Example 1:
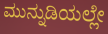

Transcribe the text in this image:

ಮುನ್ನುಡಿಯಲ್ಲೇ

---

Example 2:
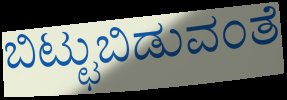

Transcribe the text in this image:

ಬಿಟ್ಟುಬಿಡುವಂತೆ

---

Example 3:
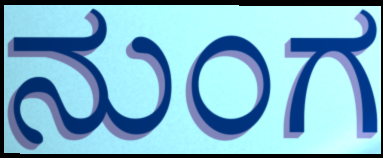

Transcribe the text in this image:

ನುಂಗ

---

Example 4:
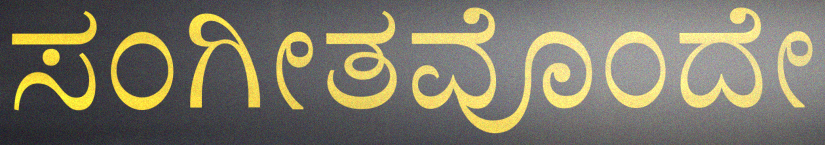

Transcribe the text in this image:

ಸಂಗೀತವೊಂದೇ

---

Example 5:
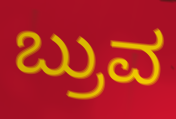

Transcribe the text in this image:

ಬ್ರುವ